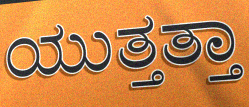
ಯುತ್ತತ್ತಾ